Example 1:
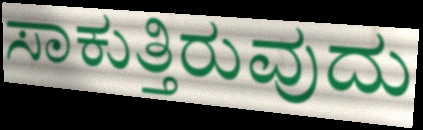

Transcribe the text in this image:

ಸಾಕುತ್ತಿರುವುದು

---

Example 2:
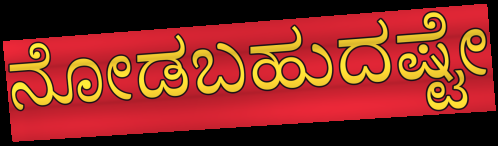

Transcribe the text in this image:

ನೋಡಬಹುದಷ್ಟೇ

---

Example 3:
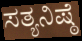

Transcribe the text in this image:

ಸತ್ಯನಿಷ್ಠೆ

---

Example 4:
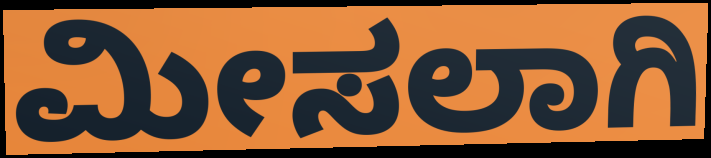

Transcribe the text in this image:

ಮೀಸಲಾಗಿ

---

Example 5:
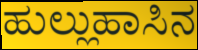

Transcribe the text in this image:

ಹುಲ್ಲುಹಾಸಿನ